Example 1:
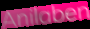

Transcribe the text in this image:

Anilaben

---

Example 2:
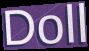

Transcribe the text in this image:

Doll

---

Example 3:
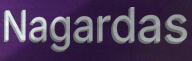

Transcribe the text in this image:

Nagardas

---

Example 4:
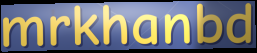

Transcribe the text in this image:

mrkhanbd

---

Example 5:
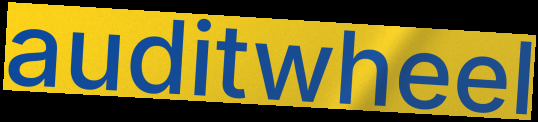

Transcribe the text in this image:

auditwheel